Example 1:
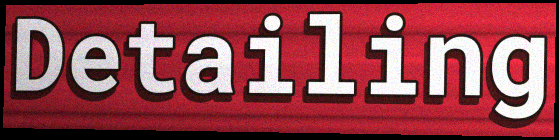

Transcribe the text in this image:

Detailing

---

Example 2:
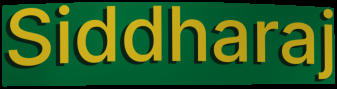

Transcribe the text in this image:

Siddharaj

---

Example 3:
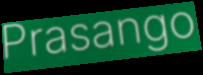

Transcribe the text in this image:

Prasango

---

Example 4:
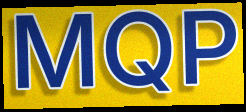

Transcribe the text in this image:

MQP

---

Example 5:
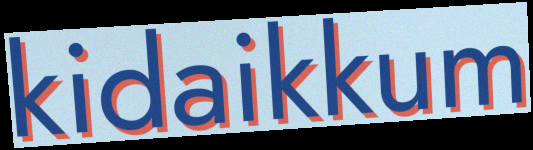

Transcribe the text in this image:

kidaikkum